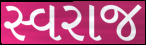
સ્વરાજ